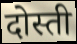
दोस्ती